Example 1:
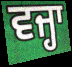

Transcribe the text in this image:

ਵਜ੍ਹਾ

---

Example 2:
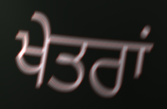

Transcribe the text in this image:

ਖੇਤਰਾਂ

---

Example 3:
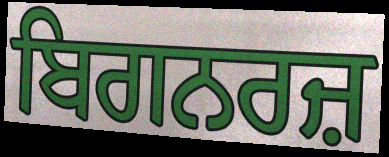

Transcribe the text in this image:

ਬਿਗਨਰਜ਼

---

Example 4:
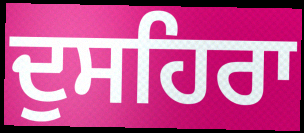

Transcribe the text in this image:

ਦੁਸਹਿਰਾ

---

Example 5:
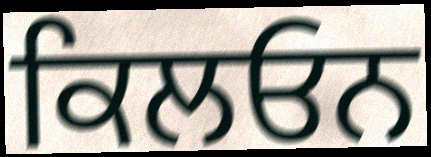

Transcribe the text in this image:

ਕਿਲਓਨ